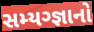
સમ્યગ્જ્ઞાનો